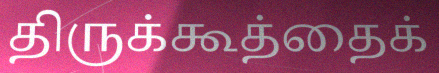
திருக்கூத்தைக்